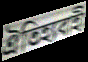
ঐতিহ্যবাহী